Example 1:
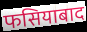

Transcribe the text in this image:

फसियाबाद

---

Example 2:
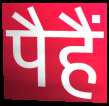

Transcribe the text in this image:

पैहैं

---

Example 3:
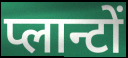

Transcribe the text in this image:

प्लान्टों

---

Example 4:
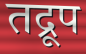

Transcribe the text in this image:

तद्रूप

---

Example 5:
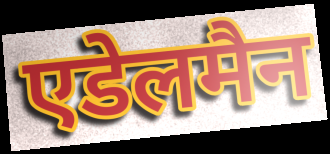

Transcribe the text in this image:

एडेलमैन